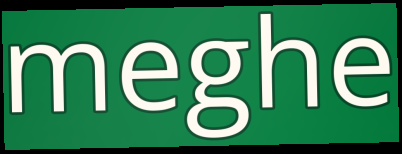
meghe